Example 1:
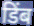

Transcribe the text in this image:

डिंब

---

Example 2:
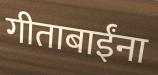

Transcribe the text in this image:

गीताबाईंना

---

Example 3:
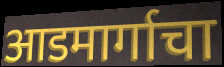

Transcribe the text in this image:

आडमार्गाचा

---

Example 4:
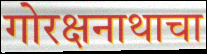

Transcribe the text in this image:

गोरक्षनाथाचा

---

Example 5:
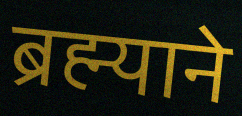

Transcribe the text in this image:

ब्रह्म्याने